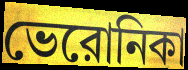
ভেরোনিকা